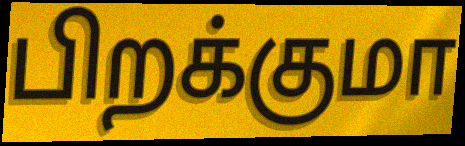
பிறக்குமா